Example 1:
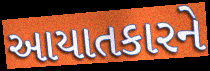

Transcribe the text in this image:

આયાતકારને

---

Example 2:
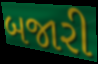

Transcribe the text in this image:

બજારી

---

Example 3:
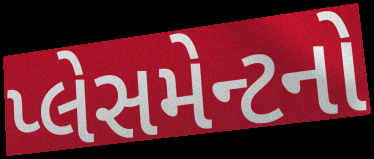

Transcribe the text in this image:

પ્લેસમેન્ટનો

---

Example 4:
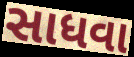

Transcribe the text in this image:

સાધવા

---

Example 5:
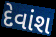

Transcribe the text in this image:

દેવાંશ